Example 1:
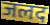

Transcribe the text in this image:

जलद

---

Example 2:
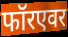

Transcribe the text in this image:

फॉरएवर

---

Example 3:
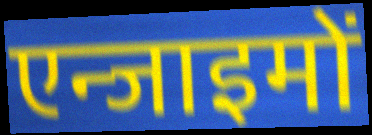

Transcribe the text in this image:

एन्जाइमों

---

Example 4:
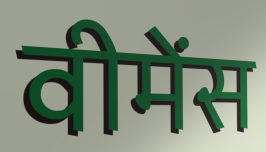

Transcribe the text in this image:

वीमेंस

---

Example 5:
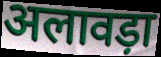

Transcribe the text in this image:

अलावड़ा